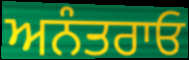
ਅਨੰਤਰਾਓ